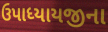
ઉપાધ્યાયજીના